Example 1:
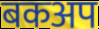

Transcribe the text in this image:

बकअप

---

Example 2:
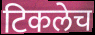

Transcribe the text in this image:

टिकलेच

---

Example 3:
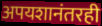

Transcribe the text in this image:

अपयशानंतरही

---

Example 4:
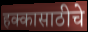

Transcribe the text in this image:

हक्कासाठीचे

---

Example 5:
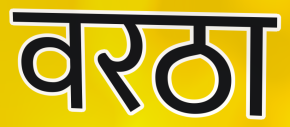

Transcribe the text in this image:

वरठा